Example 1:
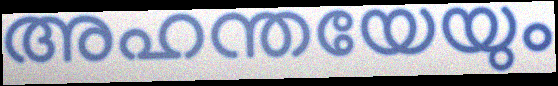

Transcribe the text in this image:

അഹന്തയേയും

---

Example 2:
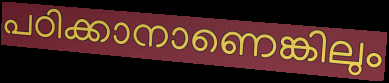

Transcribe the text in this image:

പഠിക്കാനാണെങ്കിലും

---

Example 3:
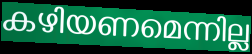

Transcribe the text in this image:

കഴിയണമെന്നില്ല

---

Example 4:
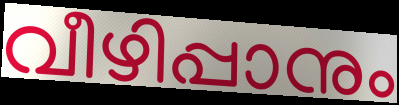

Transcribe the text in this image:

വീഴിപ്പാനും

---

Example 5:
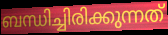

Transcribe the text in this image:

ബന്ധിച്ചിരിക്കുന്നത്